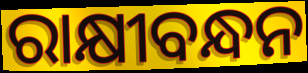
ରାକ୍ଷୀବନ୍ଧନ